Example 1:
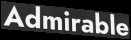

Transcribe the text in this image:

Admirable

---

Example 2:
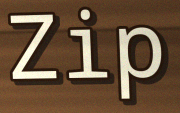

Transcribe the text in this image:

Zip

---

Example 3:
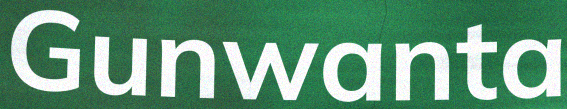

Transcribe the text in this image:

Gunwanta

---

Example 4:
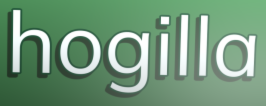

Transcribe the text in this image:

hogilla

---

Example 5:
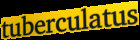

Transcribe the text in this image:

tuberculatus